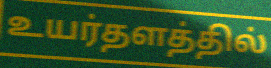
உயர்தளத்தில்